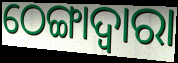
ଠେଙ୍ଗାଦ୍ୱାରା